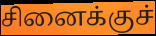
சினைக்குச்